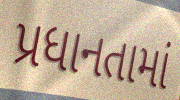
પ્રધાનતામાં